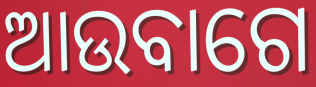
ଆଉବାଗେ